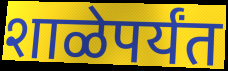
शाळेपर्यंत